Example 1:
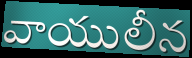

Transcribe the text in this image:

వాయులీన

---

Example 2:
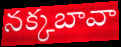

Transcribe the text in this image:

నక్కబావా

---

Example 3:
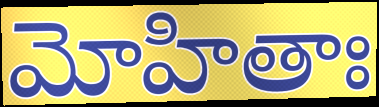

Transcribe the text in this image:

మోహితాః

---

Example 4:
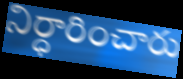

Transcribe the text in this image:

నిర్ధారించారు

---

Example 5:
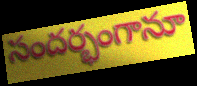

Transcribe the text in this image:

సందర్భంగానూ